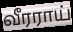
வீரராய்